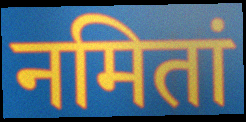
नमितां